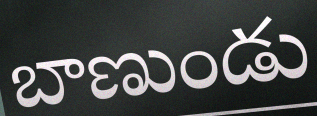
బాణుండు